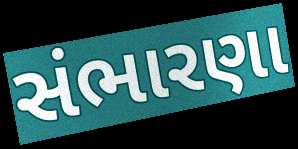
સંભારણા